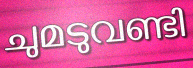
ചുമടുവണ്ടി